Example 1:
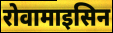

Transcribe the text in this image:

रोवामाइसिन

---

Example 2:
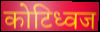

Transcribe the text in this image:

कोटिध्वज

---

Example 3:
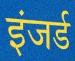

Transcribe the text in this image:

इंजर्ड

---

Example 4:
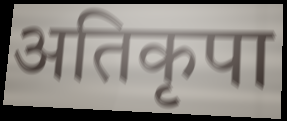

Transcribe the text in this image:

अतिकृपा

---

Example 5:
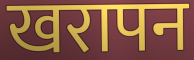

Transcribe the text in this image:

खरापन